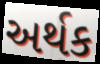
અર્થક